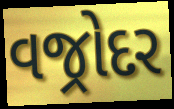
વજ્રોદર